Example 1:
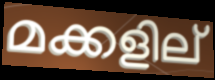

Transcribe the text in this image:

മക്കളില്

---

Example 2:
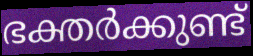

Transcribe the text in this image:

ഭക്തർക്കുണ്ട്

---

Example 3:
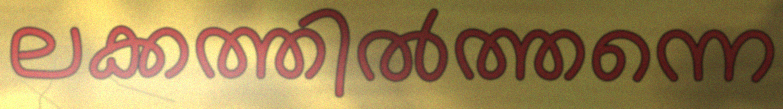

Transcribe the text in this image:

ലക്കത്തിൽത്തന്നെ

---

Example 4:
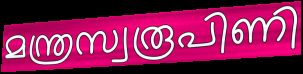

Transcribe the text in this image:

മന്ത്രസ്വരൂപിണി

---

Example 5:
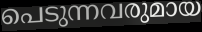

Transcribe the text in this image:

പെടുന്നവരുമായ